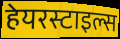
हेयरस्टाइल्स